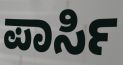
ಪಾರ್ಸಿ